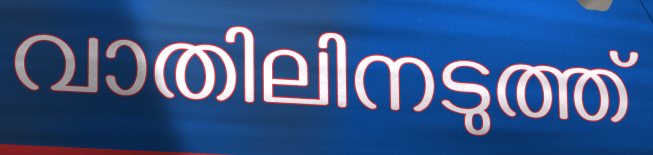
വാതിലിനടുത്ത്